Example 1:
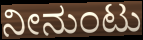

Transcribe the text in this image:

ನೀನುಂಟು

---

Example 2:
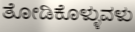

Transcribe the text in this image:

ತೋಡಿಕೊಳ್ಳುವಳು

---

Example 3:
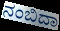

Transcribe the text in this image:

ನಂಬಿದಾ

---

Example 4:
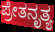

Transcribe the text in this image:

ಪ್ರೇತನೃತ್ಯ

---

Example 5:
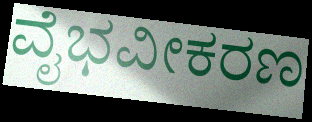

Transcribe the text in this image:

ವೈಭವೀಕರಣ